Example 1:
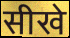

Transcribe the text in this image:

सीखे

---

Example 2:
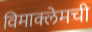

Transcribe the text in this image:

विमाक्लेमची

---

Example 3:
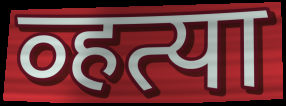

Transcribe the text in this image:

व्हत्या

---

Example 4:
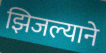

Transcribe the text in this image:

झिजल्याने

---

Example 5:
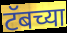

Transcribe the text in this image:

टॅबच्या